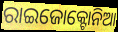
ରାଇଜୋକ୍ଟୋନିଆ